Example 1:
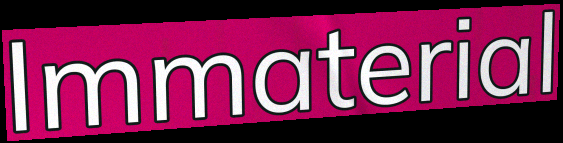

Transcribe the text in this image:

Immaterial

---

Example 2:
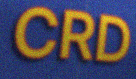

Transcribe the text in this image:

CRD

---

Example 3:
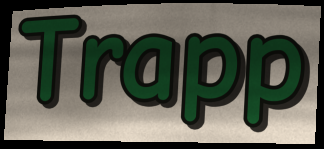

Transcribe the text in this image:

Trapp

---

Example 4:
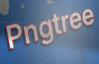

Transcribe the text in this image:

Pngtree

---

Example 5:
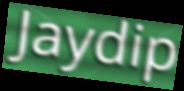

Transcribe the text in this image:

Jaydip